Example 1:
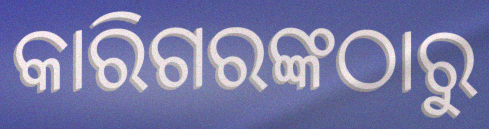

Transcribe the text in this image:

କାରିଗରଙ୍କଠାରୁ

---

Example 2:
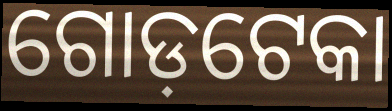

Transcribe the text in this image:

ଗୋଡ଼ଟେକା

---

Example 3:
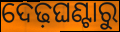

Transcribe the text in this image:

ଦେଢ଼ଘଣ୍ଟାରୁ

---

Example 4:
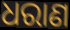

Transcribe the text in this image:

ଧରାଣ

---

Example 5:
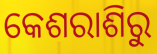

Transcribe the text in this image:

କେଶରାଶିରୁ